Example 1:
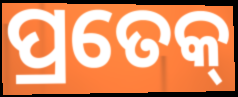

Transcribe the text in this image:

ପ୍ରତେକ୍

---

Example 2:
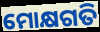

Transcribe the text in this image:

ମୋକ୍ଷଗତି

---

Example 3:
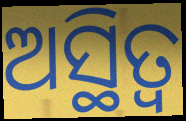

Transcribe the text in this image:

ଅସ୍ଥିତ୍ଵ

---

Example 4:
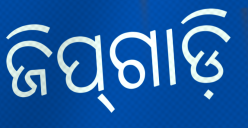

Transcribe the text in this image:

ଜିପ୍‍ଗାଡ଼ି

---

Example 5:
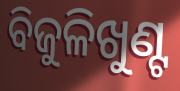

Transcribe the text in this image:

ବିଜୁଳିଖୁଣ୍ଟ